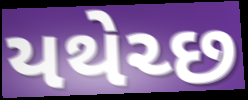
યથેચ્છ